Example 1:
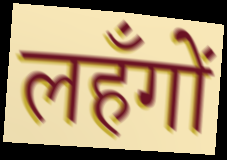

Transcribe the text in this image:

लहँगों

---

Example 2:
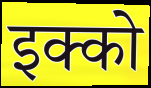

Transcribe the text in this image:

इक्को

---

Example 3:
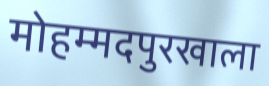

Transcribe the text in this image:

मोहम्मदपुरखाला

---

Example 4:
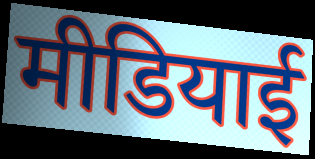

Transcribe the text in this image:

मीडियाई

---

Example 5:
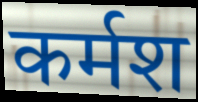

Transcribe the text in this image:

कर्मश